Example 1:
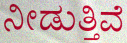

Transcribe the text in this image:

ನೀಡುತ್ತಿವೆ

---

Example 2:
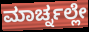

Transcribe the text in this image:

ಮಾರ್ಚ್ನಲ್ಲೇ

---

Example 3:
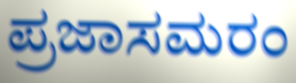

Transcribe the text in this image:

ಪ್ರಜಾಸಮರಂ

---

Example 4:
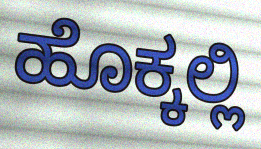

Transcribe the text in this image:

ಹೊಕ್ಕಲ್ಲಿ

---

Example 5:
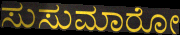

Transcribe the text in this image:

ಸುಸುಮಾರೋ